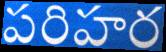
పరిహర